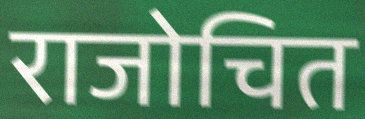
राजोचित